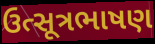
ઉત્સૂત્રભાષણ